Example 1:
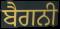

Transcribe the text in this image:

ਬੈਗਨੀ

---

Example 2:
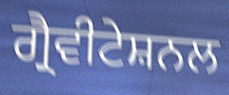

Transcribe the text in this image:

ਗ੍ਰੈਵੀਟੇਸ਼ਨਲ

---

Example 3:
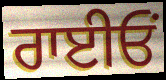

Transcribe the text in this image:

ਰਾਈਓਂ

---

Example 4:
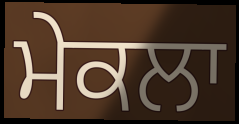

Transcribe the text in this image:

ਮੇਕਲਾ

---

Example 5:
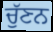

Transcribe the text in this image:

ਚੁੱਣਨ